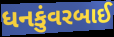
ધનકુંવરબાઈ